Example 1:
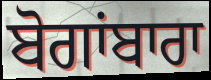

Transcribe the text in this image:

ਬੋਗਾਂਬਾਰਾ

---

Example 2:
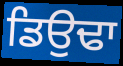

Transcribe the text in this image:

ਡਿਉਢਾ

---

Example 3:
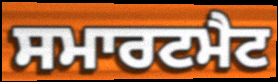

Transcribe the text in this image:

ਸਮਾਰਟਮੈਟ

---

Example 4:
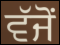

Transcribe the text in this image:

ਵੱਜੋਂ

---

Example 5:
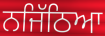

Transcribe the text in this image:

ਨਜਿੱਠਿਆ